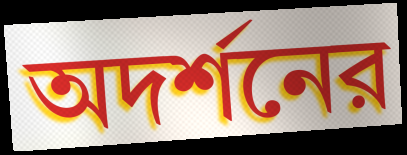
অদর্শনের